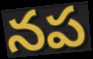
నప